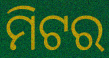
ମିଟର